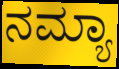
ನಮ್ಯಾ